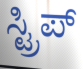
ಸ್ಟ್ರಿಪ್